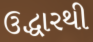
ઉદ્ધારથી